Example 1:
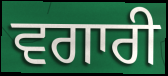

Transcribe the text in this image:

ਵਗਾਰੀ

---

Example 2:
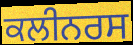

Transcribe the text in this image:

ਕਲੀਨਰਸ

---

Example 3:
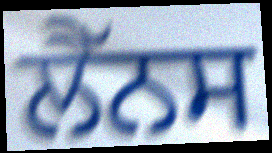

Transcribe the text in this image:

ਲੈੱਨਸ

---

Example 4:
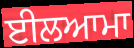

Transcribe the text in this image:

ਈਲਆਮਾ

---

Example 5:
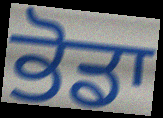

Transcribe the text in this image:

ਭੋਡਾ